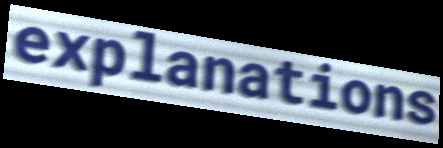
explanations